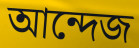
আন্দেজ